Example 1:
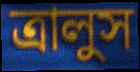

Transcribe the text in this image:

ত্রালুস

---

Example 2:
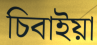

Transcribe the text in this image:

চিবাইয়া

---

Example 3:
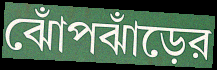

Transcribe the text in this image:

ঝোঁপঝাঁড়ের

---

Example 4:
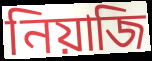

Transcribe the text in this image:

নিয়াজি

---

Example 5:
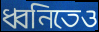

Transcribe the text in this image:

ধ্বনিতেও